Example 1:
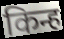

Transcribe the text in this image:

किन्ह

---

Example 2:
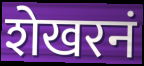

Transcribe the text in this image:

शेखरनं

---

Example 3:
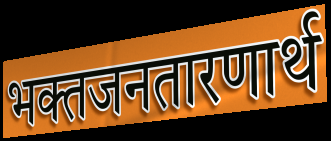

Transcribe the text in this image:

भक्तजनतारणार्थ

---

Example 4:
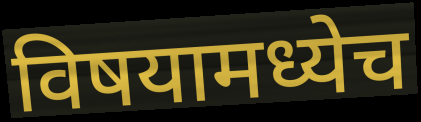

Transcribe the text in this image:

विषयामध्येच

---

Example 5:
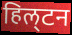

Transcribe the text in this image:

हिल्टन